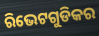
ରିଭେଟଗୁଡିକର